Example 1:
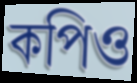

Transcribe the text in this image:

কপিও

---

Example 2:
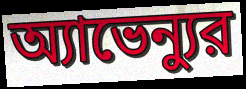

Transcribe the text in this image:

অ্যাভেন্যুর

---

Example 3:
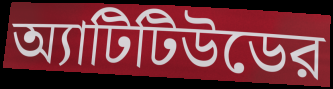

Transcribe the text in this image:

অ্যাটিটিউডের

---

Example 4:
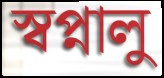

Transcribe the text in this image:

স্বপ্নালু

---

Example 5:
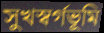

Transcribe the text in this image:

সুখস্বর্গভূমি